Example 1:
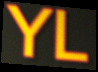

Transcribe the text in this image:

YL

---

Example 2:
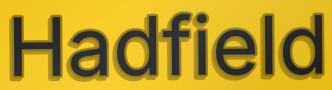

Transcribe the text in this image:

Hadfield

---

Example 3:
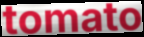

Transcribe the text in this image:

tomato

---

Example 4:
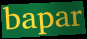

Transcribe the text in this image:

bapar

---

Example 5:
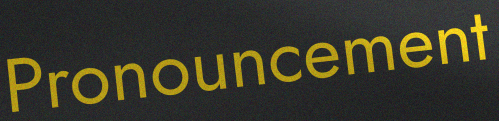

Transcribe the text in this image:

Pronouncement